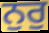
ਨੁਰੁ